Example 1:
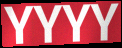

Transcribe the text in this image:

YYYY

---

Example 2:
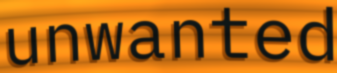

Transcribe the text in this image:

unwanted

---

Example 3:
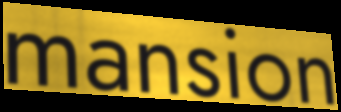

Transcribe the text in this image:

mansion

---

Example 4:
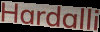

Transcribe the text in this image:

Hardalli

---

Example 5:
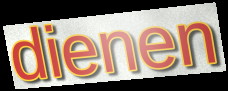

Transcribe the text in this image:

dienen